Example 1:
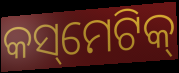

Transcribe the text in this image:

କସ୍‌ମେଟିକ୍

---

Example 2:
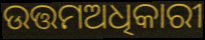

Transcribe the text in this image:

ଉତ୍ତମଅଧିକାରୀ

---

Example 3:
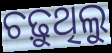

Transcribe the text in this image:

ଚଢ଼ୁଥିଲୁ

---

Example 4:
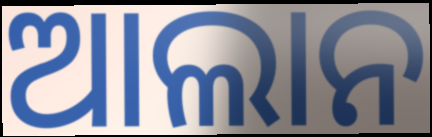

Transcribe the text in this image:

ଆଲାନ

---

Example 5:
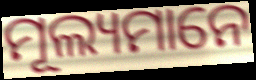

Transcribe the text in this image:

ମୂଲ୍ୟମାନେ